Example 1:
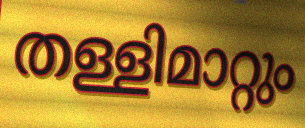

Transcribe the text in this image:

തള്ളിമാറ്റും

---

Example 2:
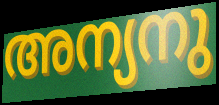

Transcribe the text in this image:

അന്യനു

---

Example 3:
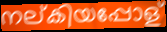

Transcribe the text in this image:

നല്കിയപ്പോള്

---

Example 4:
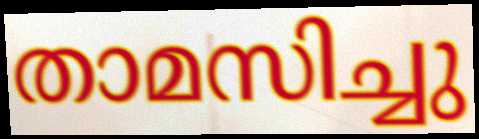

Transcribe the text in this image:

താമസിച്ചു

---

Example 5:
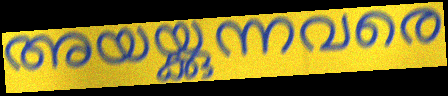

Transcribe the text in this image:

അയയ്ക്കുന്നവരെ